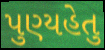
પુણ્યહેતુ